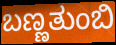
ಬಣ್ಣತುಂಬಿ